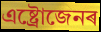
এষ্ট্ৰোজেনৰ